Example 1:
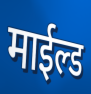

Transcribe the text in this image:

माईल्ड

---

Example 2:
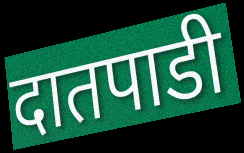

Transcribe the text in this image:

दातपाडी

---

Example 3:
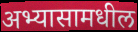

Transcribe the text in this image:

अभ्यासामधील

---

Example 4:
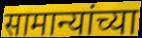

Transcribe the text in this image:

सामान्यांच्या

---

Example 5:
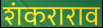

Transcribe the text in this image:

शंकराराव